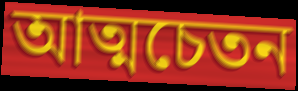
আত্মচেতন